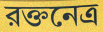
রক্তনেত্র